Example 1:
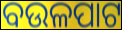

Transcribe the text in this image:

ବଉଳପାଟ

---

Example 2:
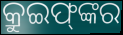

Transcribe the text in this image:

କ୍ରୁଇଫ୍‌ଙ୍କର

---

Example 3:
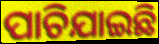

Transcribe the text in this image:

ପାଚିଯାଇଛି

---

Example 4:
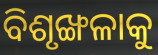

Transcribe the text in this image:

ବିଶୃଙ୍ଖଳାକୁ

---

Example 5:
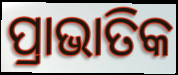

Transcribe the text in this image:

ପ୍ରାଭାତିକ